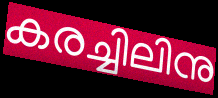
കരച്ചിലിനു